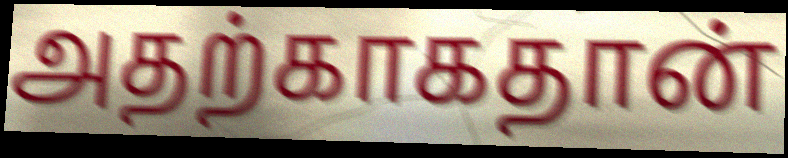
அதற்காகதான்